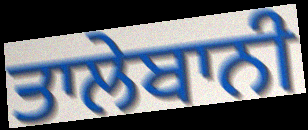
ਤਾਲੇਬਾਨੀ